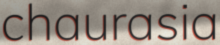
chaurasia